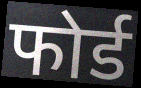
फोर्ड